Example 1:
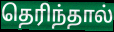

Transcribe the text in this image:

தெரிந்தால்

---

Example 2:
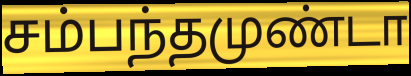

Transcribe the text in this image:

சம்பந்தமுண்டா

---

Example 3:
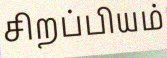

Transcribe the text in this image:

சிறப்பியம்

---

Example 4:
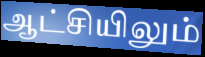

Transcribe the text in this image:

ஆட்சியிலும்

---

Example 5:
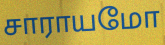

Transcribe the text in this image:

சாராயமோ